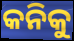
କନିକୁ